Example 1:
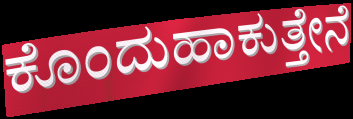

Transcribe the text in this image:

ಕೊಂದುಹಾಕುತ್ತೇನೆ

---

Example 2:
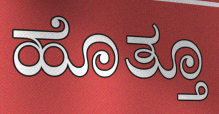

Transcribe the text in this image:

ಹೊತ್ತೂ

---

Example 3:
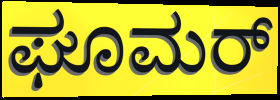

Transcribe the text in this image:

ಘೂಮರ್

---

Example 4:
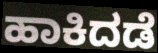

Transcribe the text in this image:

ಹಾಕಿದಡೆ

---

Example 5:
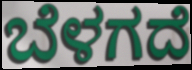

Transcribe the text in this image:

ಬೆಳಗದೆ